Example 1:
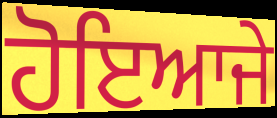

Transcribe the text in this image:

ਹੋਇਆਜੇ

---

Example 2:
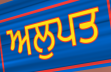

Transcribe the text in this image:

ਅਲੁਪਤ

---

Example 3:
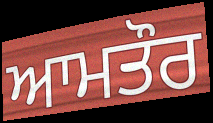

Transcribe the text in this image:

ਆਮਤੌਰ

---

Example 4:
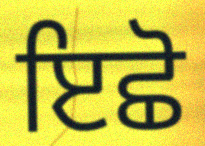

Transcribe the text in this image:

ਇਛੋ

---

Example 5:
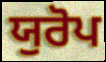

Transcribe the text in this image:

ਯੁਰੋਪ